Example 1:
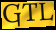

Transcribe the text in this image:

GTL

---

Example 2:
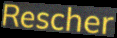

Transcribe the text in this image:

Rescher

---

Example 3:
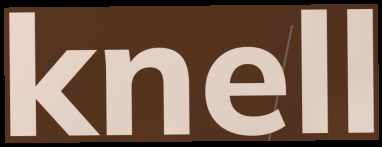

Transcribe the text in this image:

knell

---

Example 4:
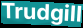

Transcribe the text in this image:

Trudgill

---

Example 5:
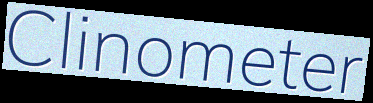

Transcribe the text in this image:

Clinometer